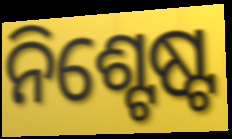
ନିଶ୍ଟେଷ୍ଟ